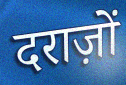
दराज़ों